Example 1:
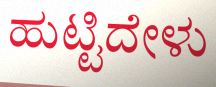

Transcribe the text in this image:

ಹುಟ್ಟಿದೇಳು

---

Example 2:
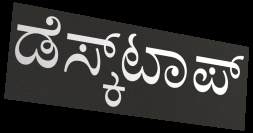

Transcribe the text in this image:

ಡೆಸ್ಕ್‌ಟಾಪ್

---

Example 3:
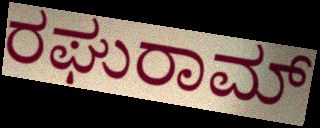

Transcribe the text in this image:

ರಘುರಾಮ್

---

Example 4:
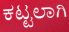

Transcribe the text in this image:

ಕಟ್ಟಲಾಗಿ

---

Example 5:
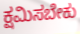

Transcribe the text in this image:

ಕ್ಷಮಿಸಬೇಕು